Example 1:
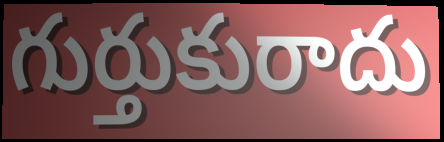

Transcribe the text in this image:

గుర్తుకురాదు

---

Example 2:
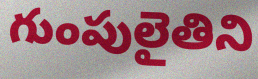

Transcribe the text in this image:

గుంపులైతిని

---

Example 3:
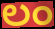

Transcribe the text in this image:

లం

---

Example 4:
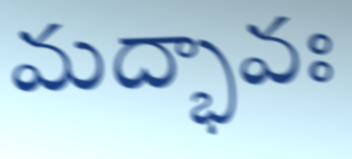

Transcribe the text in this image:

మద్భావః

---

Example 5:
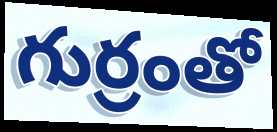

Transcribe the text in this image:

గుర్రంతో